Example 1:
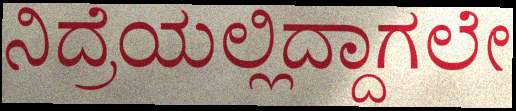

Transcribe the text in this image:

ನಿದ್ರೆಯಲ್ಲಿದ್ದಾಗಲೇ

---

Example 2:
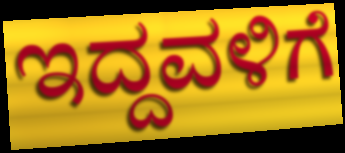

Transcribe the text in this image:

ಇದ್ದವಳಿಗೆ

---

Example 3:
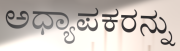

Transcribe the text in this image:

ಅಧ್ಯಾಪಕರನ್ನು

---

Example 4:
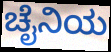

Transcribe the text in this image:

ಚೈನಿಯ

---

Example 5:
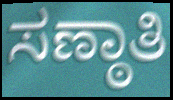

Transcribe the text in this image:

ಸಣ್ಠಾತಿ